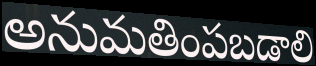
అనుమతింపబడాలి